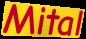
Mital